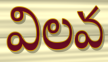
విలవ